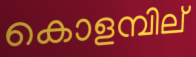
കൊളമ്പില്